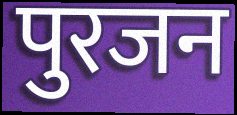
पुरजन